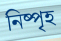
নিষ্পৃহ